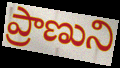
ప్రాణుని